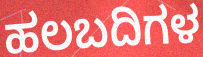
ಹಲಬದಿಗಳ